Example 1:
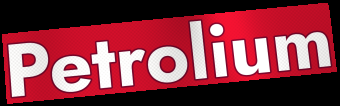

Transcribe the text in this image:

Petrolium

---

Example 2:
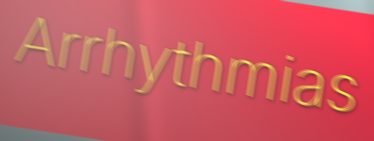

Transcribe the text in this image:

Arrhythmias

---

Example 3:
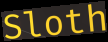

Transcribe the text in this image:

Sloth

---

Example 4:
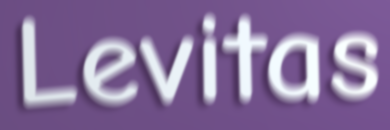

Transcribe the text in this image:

Levitas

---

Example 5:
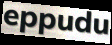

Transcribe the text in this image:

eppudu